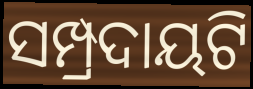
ସମ୍ପ୍ରଦାୟଟି